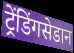
ट्रेंडिंगसेडान